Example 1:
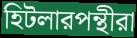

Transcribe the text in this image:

হিটলারপন্থীরা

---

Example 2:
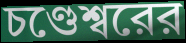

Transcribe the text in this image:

চণ্ডেশ্বরের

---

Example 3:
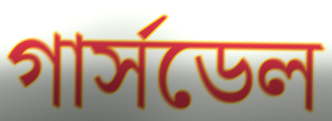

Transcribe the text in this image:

গার্সডেল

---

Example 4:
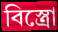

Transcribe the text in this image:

বিস্ত্রো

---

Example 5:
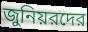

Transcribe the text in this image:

জুনিয়রদের